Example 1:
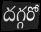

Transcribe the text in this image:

దగ్గరో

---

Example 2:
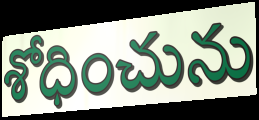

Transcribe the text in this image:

శోధించును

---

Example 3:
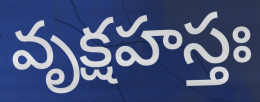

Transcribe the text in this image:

వృక్షహస్తః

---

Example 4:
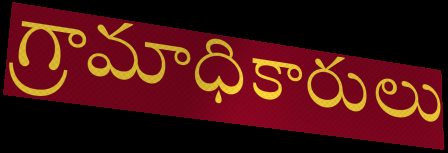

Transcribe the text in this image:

గ్రామాధికారులు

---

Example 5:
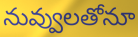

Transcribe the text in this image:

నువ్వులతోనూ